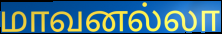
மாவனல்லா